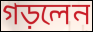
গড়লেন